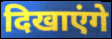
दिखाएंगे